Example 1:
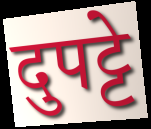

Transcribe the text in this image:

दुपट्टे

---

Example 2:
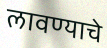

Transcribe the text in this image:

लावण्याचे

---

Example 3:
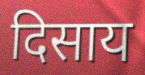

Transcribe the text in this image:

दिसाय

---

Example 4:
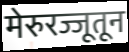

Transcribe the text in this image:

मेरुरज्जूतून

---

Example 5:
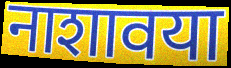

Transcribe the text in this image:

नाशावया